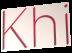
Khi